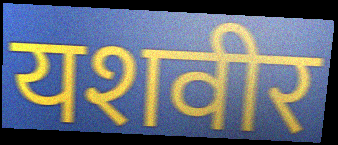
यशवीर